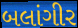
બલાંગીર